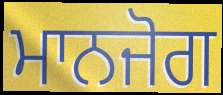
ਮਾਨਜੋਗ